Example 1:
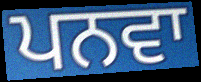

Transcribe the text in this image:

ਪਨਵਾ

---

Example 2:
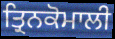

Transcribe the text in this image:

ਤ੍ਰਿਨਕੋਮਾਲੀ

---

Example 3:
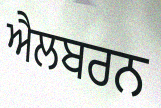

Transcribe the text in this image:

ਐਲਬਰਨ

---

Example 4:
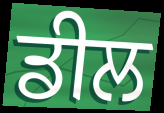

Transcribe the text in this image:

ਡੀਲ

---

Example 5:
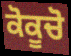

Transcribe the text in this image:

ਕੋਕੂਚੋ